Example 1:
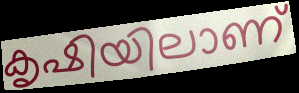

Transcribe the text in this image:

കൃഷിയിലാണ്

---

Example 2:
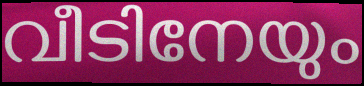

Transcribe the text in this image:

വീടിനേയും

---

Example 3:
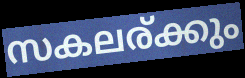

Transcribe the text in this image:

സകലര്ക്കും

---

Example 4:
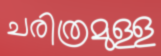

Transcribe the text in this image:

ചരിത്രമുള്ള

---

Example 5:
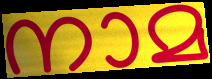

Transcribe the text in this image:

നാമ